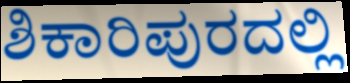
ಶಿಕಾರಿಪುರದಲ್ಲಿ